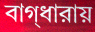
বাগ্‌ধারায়